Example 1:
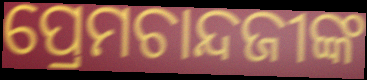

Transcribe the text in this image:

ପ୍ରେମଚାନ୍ଦଜୀଙ୍କ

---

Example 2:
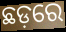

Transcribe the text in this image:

ଛଡ଼ରେ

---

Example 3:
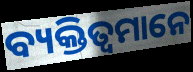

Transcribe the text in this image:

ବ୍ୟକ୍ତିତ୍ୱମାନେ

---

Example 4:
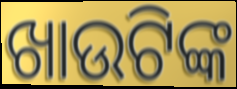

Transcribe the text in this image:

ଖାଉଟିଙ୍କ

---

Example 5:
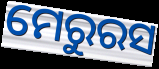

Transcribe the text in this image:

ମେରୁରସ